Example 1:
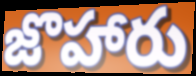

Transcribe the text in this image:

జొహారు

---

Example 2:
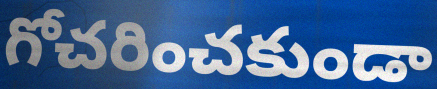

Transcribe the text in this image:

గోచరించకుండా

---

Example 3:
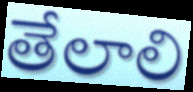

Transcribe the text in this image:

తేలాలి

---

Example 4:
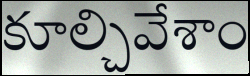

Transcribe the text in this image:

కూల్చివేశాం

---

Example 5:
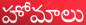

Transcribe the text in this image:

హోమాలు